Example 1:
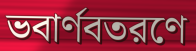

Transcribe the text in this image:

ভবার্ণবতরণে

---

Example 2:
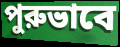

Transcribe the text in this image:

পুরুভাবে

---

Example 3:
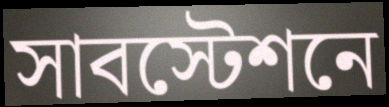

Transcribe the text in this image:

সাবস্টেশনে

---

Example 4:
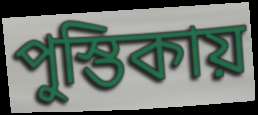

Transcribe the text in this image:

পুস্তিকায়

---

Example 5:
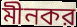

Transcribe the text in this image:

মীনকর